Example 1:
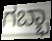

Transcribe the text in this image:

ಗಬ್ಭಾ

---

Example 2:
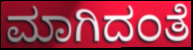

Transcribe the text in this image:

ಮಾಗಿದಂತೆ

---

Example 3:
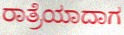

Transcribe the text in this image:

ರಾತ್ರೆಯಾದಾಗ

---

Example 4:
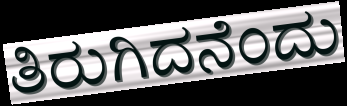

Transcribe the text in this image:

ತಿರುಗಿದನೆಂದು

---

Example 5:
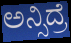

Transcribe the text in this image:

ಅನ್ಸಿದ್ರೆ